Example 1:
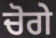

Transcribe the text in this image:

ਚੋਗੇ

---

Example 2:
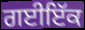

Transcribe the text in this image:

ਗਈਇੱਕ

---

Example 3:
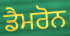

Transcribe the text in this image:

ਡੈਮਰੋਨ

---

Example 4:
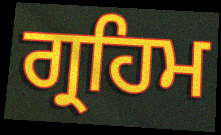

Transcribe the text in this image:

ਗ੍ਰਹਿਮ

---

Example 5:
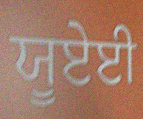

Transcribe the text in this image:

ਯੂਏਈ